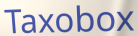
Taxobox